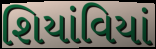
શિયાંવિયાં